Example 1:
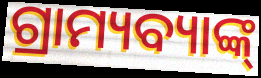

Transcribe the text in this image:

ଗ୍ରାମ୍ୟବ୍ୟାଙ୍କ୍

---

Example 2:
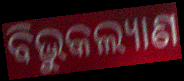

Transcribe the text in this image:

ବିଭୁକଲ୍ୟାଣ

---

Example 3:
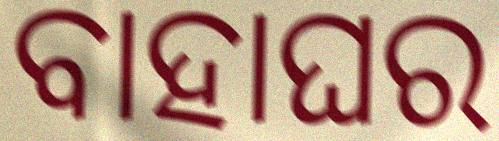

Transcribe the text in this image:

ବାହାଘର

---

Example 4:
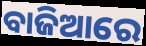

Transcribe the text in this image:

ବାଜିଆରେ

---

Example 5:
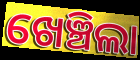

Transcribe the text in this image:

ଖେଞ୍ଚିଲା